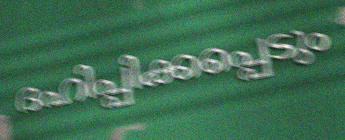
ദഹിപ്പിക്കപ്പെടും